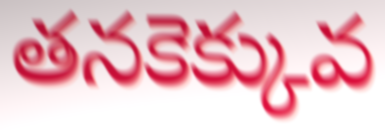
తనకెక్కువ